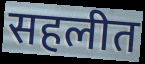
सहलीत